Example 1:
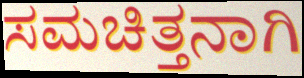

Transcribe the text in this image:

ಸಮಚಿತ್ತನಾಗಿ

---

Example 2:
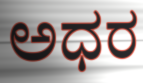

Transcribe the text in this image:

ಅಧರ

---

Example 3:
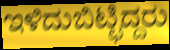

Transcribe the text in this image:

ಇಳಿದುಬಿಟ್ಟಿದ್ದರು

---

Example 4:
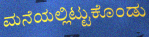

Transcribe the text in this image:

ಮನೆಯಲ್ಲಿಟ್ಟುಕೊಂಡು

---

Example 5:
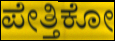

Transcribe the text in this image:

ಪೇತ್ತಿಕೋ